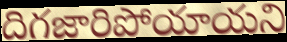
దిగజారిపోయాయని